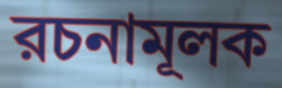
রচনামূলক